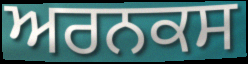
ਅਰਨਕਸ